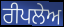
ਰੀਪਲੇਅ